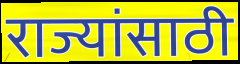
राज्यांसाठी